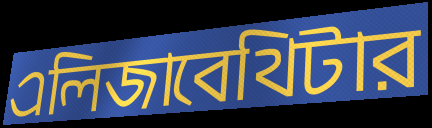
এলিজাবেথিটার